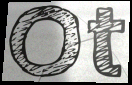
Ot